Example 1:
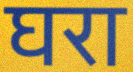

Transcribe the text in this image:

घरा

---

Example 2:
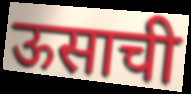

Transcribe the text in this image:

ऊसाची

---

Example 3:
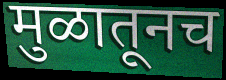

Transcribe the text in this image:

मुळातूनच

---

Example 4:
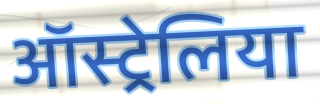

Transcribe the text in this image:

ऑस्ट्रेलिया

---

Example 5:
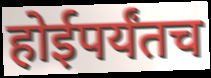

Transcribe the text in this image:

होईपर्यंतच